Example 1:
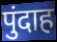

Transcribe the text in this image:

पुंदाह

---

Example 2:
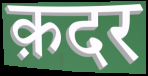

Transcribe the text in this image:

क़दर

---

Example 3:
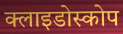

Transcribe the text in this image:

क्लाइडोस्कोप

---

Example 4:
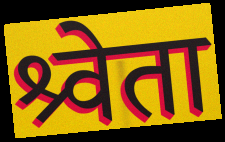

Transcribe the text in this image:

श्र्वेता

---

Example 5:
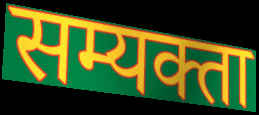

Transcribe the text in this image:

सम्यक्ता